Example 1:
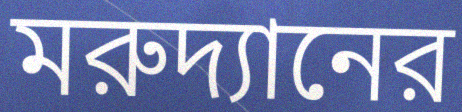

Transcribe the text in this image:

মরুদ্যানের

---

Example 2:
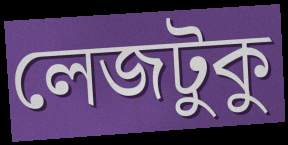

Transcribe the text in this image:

লেজটুকু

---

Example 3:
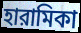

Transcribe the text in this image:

হারামিকা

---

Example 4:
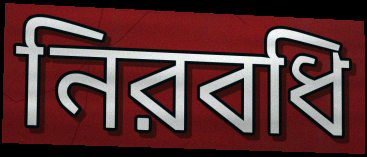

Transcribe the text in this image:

নিরবধি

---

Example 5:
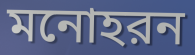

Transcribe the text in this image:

মনোহরন